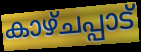
കാഴ്ചപ്പാട്